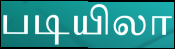
படியிலா